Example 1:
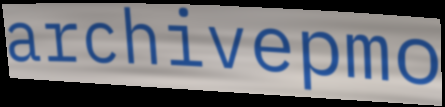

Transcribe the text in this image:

archivepmo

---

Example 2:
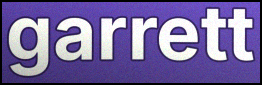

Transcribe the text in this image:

garrett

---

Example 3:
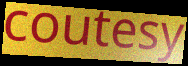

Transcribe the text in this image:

coutesy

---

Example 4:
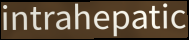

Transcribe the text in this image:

intrahepatic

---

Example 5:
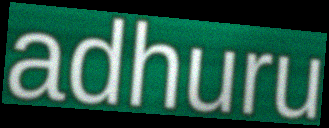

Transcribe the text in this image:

adhuru